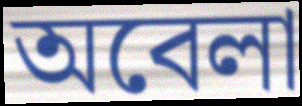
অবেলা